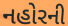
નહોરની